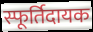
स्फूर्तिदायक